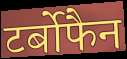
टर्बोफैन